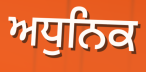
ਅਧੁਨਿਕ